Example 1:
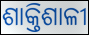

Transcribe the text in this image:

ଶାକ୍ତିଶାଳୀ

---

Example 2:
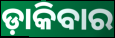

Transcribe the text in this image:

ଡ଼ାକିବାର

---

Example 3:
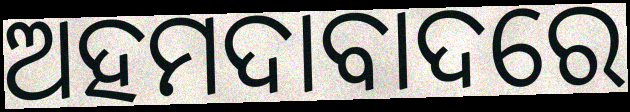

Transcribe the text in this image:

ଅହମଦାବାଦରେ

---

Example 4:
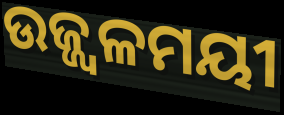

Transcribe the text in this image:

ଉଜ୍ଜ୍ୱଳମୟୀ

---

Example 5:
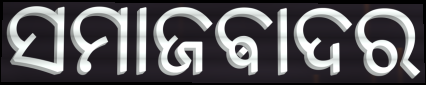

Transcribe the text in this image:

ସମାଜଵାଦର